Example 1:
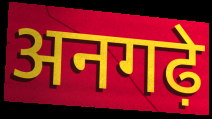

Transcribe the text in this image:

अनगढ़े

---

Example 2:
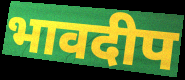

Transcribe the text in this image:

भावदीप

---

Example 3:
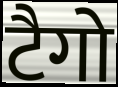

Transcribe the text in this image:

टैगो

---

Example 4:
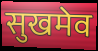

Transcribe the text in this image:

सुखमेव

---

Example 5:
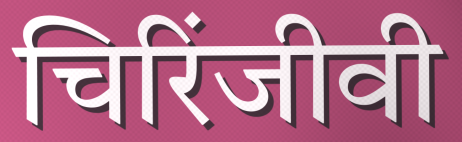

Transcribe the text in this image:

चिरिंजीवी